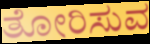
ತೋರಿಸುವ